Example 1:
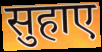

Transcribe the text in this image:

सुहाए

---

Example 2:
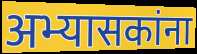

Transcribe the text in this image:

अभ्यासकांना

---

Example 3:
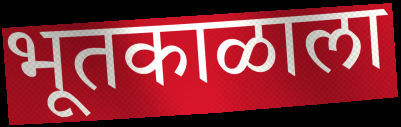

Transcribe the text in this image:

भूतकाळाला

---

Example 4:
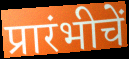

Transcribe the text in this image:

प्रारंभीचें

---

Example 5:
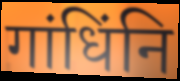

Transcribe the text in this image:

गांधिंनि